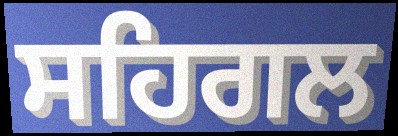
ਸਹਿਗਲ